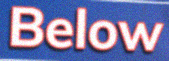
Below